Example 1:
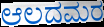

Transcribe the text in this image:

ಆಲದಮರ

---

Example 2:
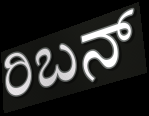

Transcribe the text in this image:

ರಿಬನ್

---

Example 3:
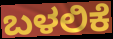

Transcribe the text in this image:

ಬಳಲಿಕೆ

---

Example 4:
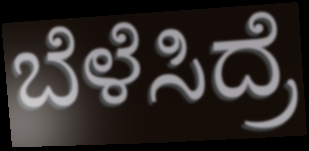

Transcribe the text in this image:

ಬೆಳೆಸಿದ್ರೆ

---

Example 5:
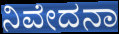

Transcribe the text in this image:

ನಿವೇದನಾ